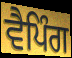
ਵੈਪਿੰਗ